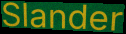
Slander